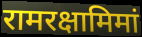
रामरक्षामिमां